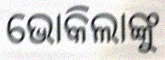
ଭୋକିଲାଙ୍କୁ